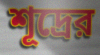
শূদ্রের